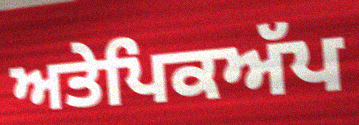
ਅਤੇਪਿਕਅੱਪ